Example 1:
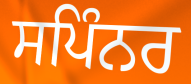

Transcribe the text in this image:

ਸਪਿੰਨਰ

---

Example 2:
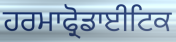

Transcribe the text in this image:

ਹਰਮਾਫ੍ਰੋਡਾਈਟਿਕ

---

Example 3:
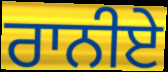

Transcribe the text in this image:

ਰਾਨੀਏ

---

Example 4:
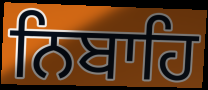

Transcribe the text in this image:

ਨਿਬਾਹਿ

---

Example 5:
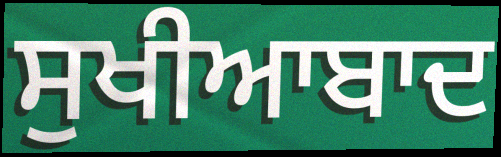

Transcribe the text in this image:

ਸੁਖੀਆਬਾਦ